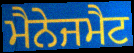
ਮੈਨੇਜਮੈਟ